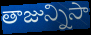
తాజున్నిసా